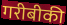
गरीबीकी